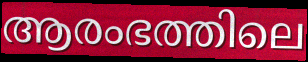
ആരംഭത്തിലെ